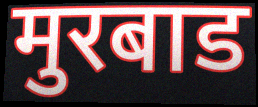
मुरबाड